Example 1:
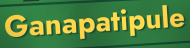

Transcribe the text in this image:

Ganapatipule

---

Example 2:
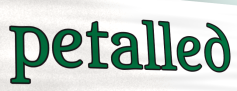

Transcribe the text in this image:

petalled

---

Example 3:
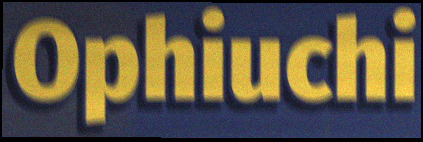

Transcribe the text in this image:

Ophiuchi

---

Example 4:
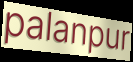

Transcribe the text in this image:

palanpur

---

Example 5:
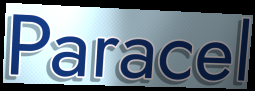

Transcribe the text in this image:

Paracel